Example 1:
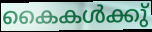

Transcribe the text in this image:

കൈകൾക്കു്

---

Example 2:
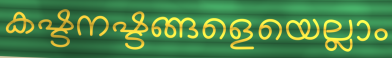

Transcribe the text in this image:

കഷ്ടനഷ്ടങ്ങളെയെല്ലാം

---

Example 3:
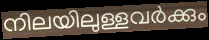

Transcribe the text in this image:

നിലയിലുള്ളവർക്കും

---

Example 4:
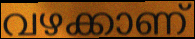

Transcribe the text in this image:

വഴക്കാണ്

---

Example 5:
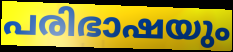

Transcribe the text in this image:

പരിഭാഷയും